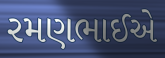
રમણભાઈએ